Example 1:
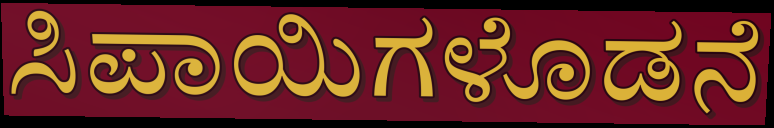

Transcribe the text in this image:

ಸಿಪಾಯಿಗಳೊಡನೆ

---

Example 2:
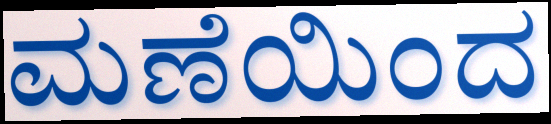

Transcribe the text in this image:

ಮಣೆಯಿಂದ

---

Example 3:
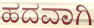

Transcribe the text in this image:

ಹದವಾಗಿ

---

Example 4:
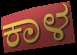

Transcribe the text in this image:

ಕಾಳ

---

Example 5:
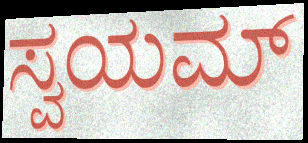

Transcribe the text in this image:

ಸ್ವಯಮ್